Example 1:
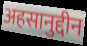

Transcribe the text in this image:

अहसानुद्दीन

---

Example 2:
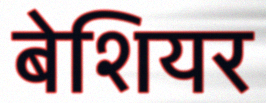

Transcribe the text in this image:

बेशियर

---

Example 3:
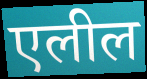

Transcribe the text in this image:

एलील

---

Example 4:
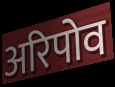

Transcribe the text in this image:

अरिपोव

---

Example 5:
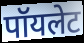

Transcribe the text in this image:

पॉयलेट